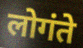
लोगंते